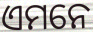
ଏମନେ